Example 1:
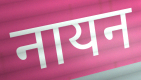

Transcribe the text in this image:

नायन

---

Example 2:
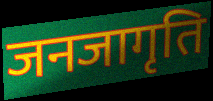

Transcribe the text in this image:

जनजागृति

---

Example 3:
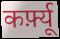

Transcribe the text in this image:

कर्फ़्यू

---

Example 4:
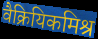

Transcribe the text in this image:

वैक्रियिकमिश्र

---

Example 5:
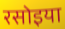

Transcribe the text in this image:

रसोइया